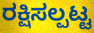
ರಕ್ಷಿಸಲ್ಪಟ್ಟ